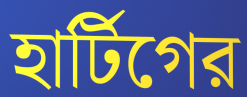
হার্টিগের